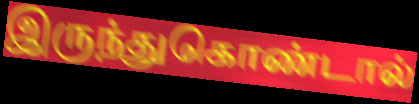
இருந்துகொண்டால்